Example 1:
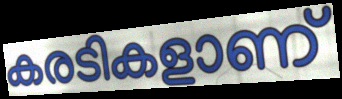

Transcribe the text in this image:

കരടികളാണ്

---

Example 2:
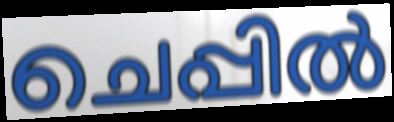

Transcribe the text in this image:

ചെപ്പിൽ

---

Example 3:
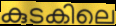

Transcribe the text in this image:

കുടകിലെ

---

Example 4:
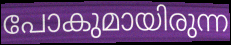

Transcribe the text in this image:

പോകുമായിരുന്ന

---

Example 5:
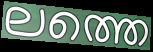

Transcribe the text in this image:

ലത്തെ